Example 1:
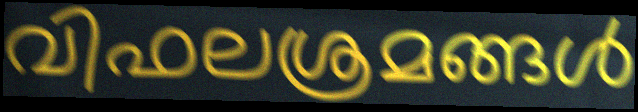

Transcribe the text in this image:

വിഫലശ്രമങ്ങൾ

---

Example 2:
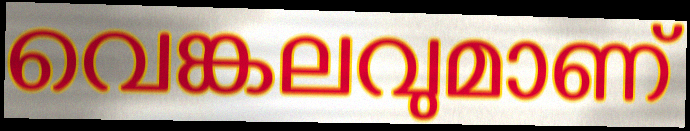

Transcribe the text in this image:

വെങ്കലവുമാണ്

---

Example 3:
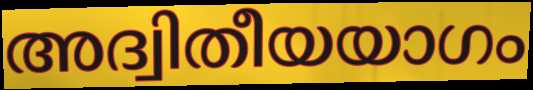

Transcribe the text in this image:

അദ്വിതീയയാഗം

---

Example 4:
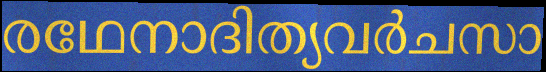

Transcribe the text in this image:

രഥേനാദിത്യവർചസാ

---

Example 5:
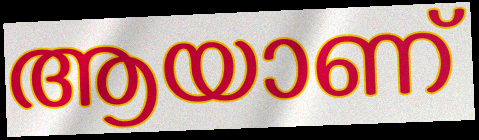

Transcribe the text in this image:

ആയാണ്